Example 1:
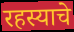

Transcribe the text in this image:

रहस्याचे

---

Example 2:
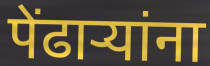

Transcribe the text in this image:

पेंढाऱ्यांना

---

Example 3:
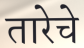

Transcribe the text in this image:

तारेचे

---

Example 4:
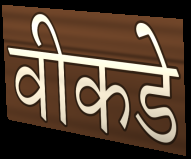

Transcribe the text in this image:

वीकडे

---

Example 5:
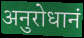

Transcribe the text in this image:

अनुरोधानं